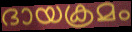
ദായക്രമം